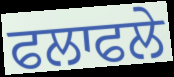
ਫਲਾਫਲੇ